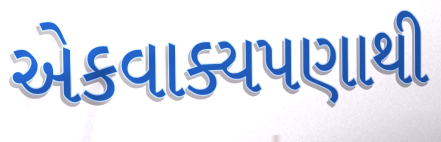
એકવાક્યપણાથી